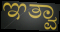
ಞತ್ವಾ